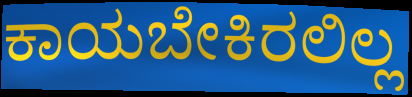
ಕಾಯಬೇಕಿರಲಿಲ್ಲ